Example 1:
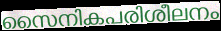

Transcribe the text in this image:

സൈനികപരിശീലനം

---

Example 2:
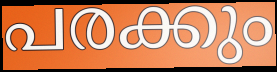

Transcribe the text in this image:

പരക്കും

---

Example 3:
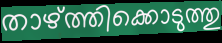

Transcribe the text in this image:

താഴ്ത്തിക്കൊടുത്തു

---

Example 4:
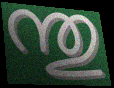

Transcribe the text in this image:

ന്തു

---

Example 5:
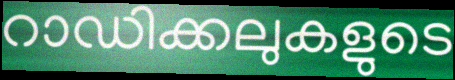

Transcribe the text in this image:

റാഡിക്കലുകളുടെ